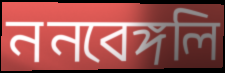
ননবেঙ্গলি